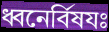
ধ্বনের্বিষযঃ